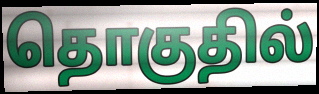
தொகுதில்